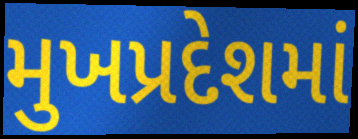
મુખપ્રદેશમાં